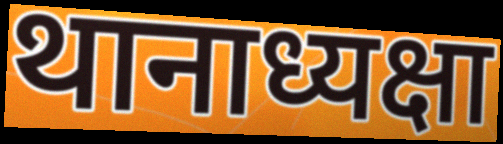
थानाध्यक्षा